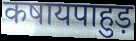
कषायपाहुड़